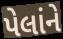
પેલાંને